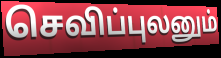
செவிப்புலனும்